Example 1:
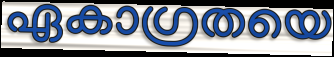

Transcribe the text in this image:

ഏകാഗ്രതയെ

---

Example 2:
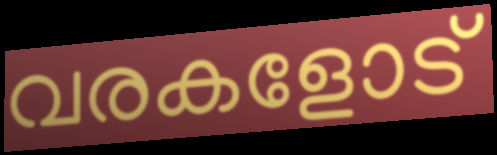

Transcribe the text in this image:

വരകളോട്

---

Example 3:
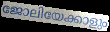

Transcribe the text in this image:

ജോലിയേക്കാളും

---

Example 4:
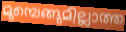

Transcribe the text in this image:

മുമ്പെങ്ങുമില്ലാത്ത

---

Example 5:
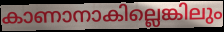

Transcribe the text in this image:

കാണാനാകില്ലെങ്കിലും